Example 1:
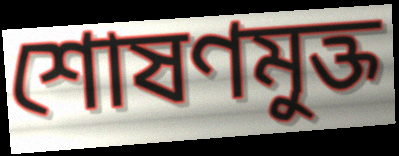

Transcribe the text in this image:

শোষণমুক্ত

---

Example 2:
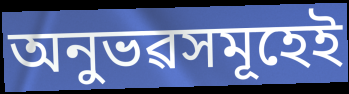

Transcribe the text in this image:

অনুভৱসমূহেই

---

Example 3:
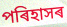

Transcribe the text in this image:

পৰিহাসৰ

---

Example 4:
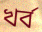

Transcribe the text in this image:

খৰ্ব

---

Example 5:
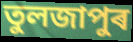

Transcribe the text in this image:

তুলজাপুৰ